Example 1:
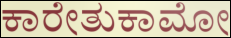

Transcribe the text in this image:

ಕಾರೇತುಕಾಮೋ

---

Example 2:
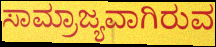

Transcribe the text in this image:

ಸಾಮ್ರಾಜ್ಯವಾಗಿರುವ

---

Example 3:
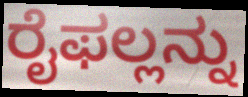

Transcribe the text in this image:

ರೈಫಲ್ಲನ್ನು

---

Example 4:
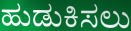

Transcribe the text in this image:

ಹುಡುಕಿಸಲು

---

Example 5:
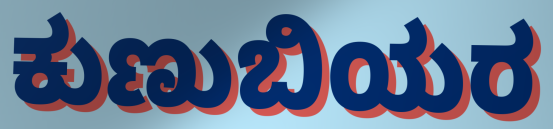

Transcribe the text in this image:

ಕುಣುಬಿಯರ